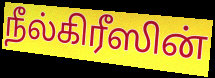
நீல்கிரீஸின்